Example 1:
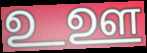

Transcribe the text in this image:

உஊ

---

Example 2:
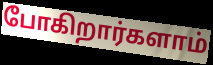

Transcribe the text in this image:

போகிறார்களாம்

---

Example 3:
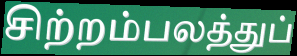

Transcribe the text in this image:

சிற்றம்பலத்துப்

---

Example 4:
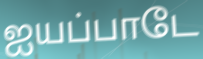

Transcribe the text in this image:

ஐயப்பாடே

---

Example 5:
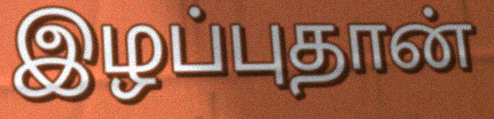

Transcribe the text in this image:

இழப்புதான்